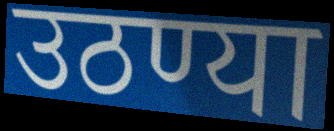
उठण्या